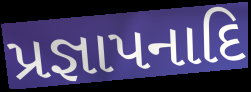
પ્રજ્ઞાપનાદિ